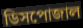
ডিসপোজাল